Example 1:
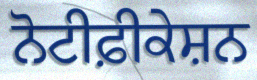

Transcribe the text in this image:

ਨੋਟੀਫ਼ੀਕੇਸ਼ਨ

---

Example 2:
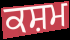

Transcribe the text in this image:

ਕਸ਼ਮ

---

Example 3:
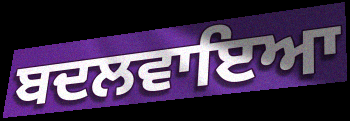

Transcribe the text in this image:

ਬਦਲਵਾਇਆ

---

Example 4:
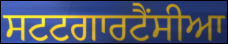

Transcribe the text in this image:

ਸਟਟਗਾਰਟੈਂਸੀਆ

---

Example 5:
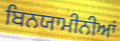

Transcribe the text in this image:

ਬਿਨਯਾਮੀਨੀਆਂ